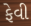
ફેવી